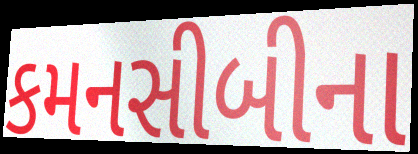
કમનસીબીના